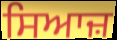
ਸਿਆਜ਼